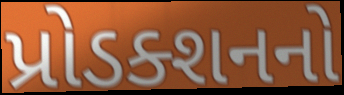
પ્રોડક્શનનો